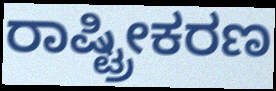
ರಾಷ್ಟ್ರೀಕರಣ